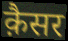
क़ैसर